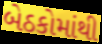
બેઠકોમાંથી